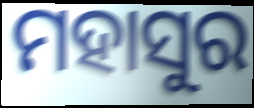
ମହାସୁର